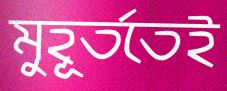
মুহূৰ্ততেই